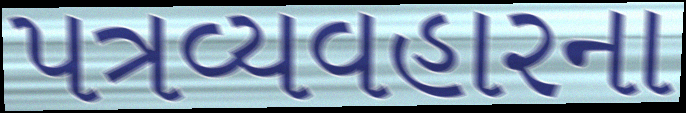
પત્રવ્યવહારના